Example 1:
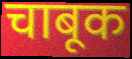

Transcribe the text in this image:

चाबूक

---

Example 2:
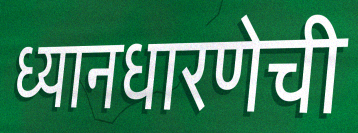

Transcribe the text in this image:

ध्यानधारणेची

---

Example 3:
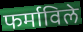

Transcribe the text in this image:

फर्माविले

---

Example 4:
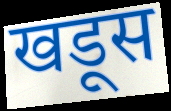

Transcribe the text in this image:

खडूस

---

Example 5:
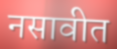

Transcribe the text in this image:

नसावीत